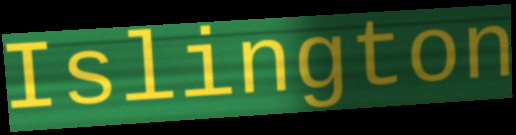
Islington